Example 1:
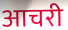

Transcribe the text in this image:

आचरी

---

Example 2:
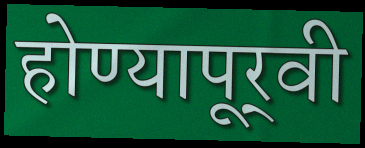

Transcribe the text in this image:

होण्यापूर्वी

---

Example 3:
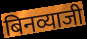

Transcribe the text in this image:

बिनव्याजी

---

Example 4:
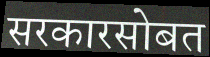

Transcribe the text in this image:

सरकारसोबत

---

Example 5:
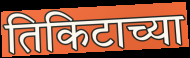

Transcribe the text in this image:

तिकिटाच्या